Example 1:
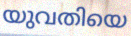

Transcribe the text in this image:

യുവതിയെ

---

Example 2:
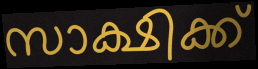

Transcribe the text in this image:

സാക്ഷിക്ക്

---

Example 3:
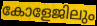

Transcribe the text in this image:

കോളേജിലും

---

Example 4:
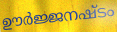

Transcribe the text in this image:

ഊർജ്ജനഷ്ടം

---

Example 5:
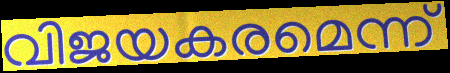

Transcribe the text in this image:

വിജയകരമെന്ന്